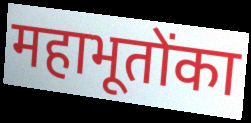
महाभूतोंका